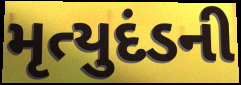
મૃત્યુદંડની